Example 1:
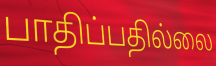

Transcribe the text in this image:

பாதிப்பதில்லை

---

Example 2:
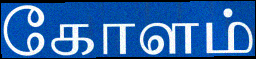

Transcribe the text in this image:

கோளம்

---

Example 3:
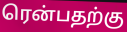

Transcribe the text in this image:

ரென்பதற்கு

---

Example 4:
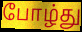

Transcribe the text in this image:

போழ்து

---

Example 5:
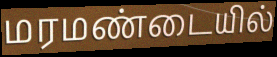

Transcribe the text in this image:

மரமண்டையில்